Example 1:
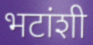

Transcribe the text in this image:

भटांशी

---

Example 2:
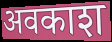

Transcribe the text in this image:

अवकाश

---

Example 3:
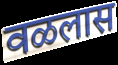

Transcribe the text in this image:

वळलास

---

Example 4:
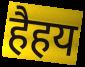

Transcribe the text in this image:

हैहय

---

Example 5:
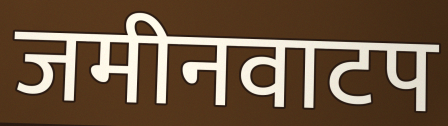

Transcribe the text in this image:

जमीनवाटप